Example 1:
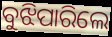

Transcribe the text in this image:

ବୁଝିପାରିଲେ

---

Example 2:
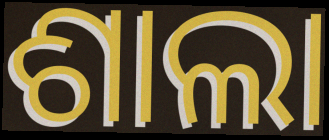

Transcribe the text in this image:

ଶାଲା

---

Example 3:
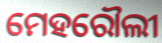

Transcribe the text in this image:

ମେହରୌଲୀ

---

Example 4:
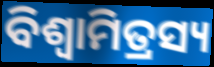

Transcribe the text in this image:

ବିଶ୍ଵାମିତ୍ରସ୍ୟ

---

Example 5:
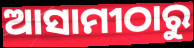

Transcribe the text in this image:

ଆସାମୀଠାରୁ